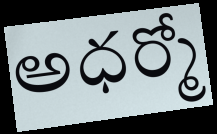
అధర్మో